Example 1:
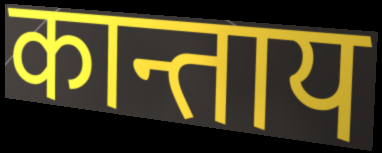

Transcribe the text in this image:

कान्ताय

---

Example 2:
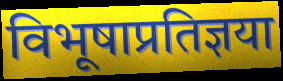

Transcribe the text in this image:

विभूषाप्रतिज्ञया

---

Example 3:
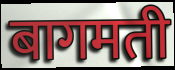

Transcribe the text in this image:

बागमती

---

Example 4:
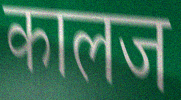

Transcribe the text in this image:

कालज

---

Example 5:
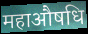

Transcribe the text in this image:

महाऔषधि